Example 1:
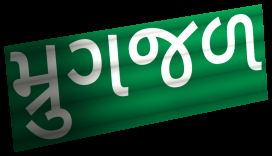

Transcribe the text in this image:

મ્રુગજળ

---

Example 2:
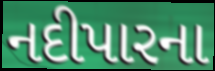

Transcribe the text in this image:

નદીપારના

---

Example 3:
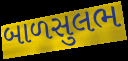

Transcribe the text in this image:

બાળસુલભ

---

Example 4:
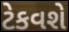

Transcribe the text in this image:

ટેકવશે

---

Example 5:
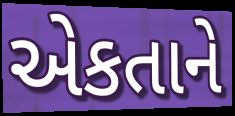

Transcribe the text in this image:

એકતાને